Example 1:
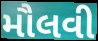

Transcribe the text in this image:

મૌલવી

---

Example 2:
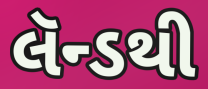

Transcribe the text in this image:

લૅન્ડથી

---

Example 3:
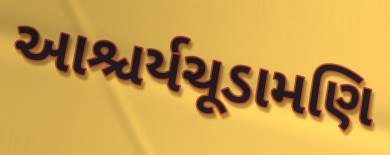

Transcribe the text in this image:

આશ્ચર્યચૂડામણિ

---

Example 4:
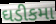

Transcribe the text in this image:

ઘડીકમા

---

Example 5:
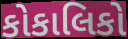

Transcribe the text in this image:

કોકાલિકો